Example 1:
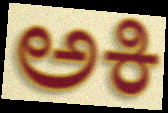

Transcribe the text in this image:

ಅಕಿ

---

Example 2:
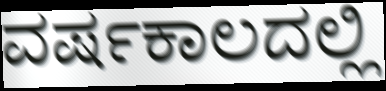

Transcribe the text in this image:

ವರ್ಷಕಾಲದಲ್ಲಿ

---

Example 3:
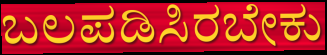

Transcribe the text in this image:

ಬಲಪಡಿಸಿರಬೇಕು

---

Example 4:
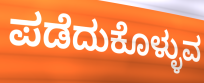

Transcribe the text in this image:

ಪಡೆದುಕೊಳ್ಳುವ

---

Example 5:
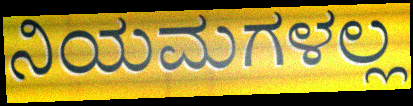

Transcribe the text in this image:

ನಿಯಮಗಳಲ್ಲ